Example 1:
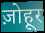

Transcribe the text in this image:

ज़ोहूर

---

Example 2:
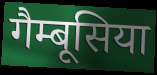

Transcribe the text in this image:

गैम्बूसिया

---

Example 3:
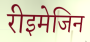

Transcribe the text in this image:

रीइमेजिन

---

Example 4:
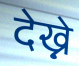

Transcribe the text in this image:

देख्ने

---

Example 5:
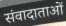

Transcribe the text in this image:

संवादाताओं